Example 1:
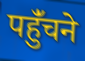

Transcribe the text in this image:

पहुंँचने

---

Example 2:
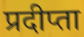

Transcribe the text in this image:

प्रदीप्ता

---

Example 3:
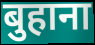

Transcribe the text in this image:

बुहाना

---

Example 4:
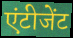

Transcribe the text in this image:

एंटीजेंट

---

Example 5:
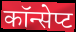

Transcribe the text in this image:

कॉन्सेप्ट